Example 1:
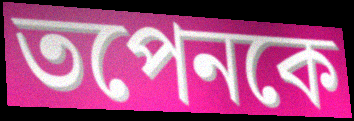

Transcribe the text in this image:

তপেনকে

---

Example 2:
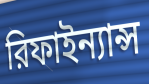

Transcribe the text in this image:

রিফাইন্যান্স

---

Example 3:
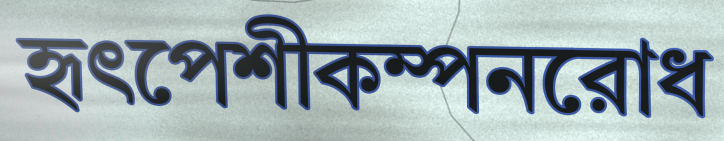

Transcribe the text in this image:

হৃৎপেশীকম্পনরোধ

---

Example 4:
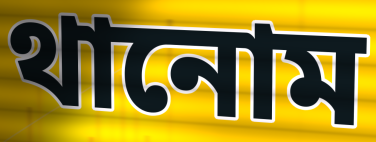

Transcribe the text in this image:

থানোম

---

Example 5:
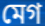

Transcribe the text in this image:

মেগ